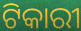
ଟିକାରୀ